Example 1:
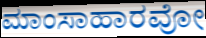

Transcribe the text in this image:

ಮಾಂಸಾಹಾರವೋ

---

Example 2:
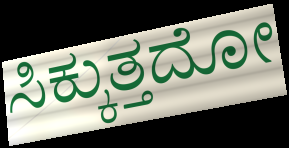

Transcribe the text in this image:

ಸಿಕ್ಕುತ್ತದೋ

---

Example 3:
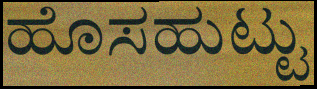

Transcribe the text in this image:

ಹೊಸಹುಟ್ಟು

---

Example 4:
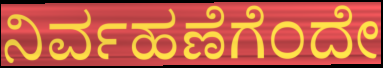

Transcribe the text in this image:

ನಿರ್ವಹಣೆಗೆಂದೇ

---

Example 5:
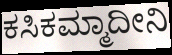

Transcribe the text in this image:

ಕಸಿಕಮ್ಮಾದೀನಿ